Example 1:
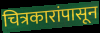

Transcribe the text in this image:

चित्रकारांपासून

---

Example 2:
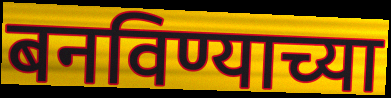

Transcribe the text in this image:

बनविण्याच्या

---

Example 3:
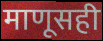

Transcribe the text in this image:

माणूसही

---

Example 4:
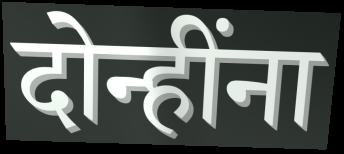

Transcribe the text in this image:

दोन्हींना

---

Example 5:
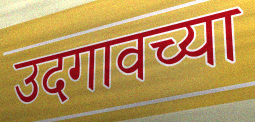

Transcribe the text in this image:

उदगावच्या